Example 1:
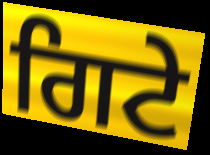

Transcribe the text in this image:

ਗਿਟੇ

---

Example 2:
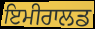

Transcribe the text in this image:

ਇਮੀਰਾਲਡ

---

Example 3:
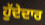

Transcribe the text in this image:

ਹੁੱਦੇਦਾਰ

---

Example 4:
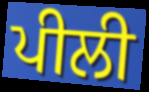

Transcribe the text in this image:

ਪੀਲੀ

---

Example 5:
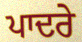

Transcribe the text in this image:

ਪਾਦਰੇ